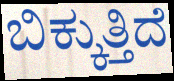
ಬಿಕ್ಕುತ್ತಿದೆ